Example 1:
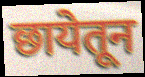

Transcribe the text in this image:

छायेतून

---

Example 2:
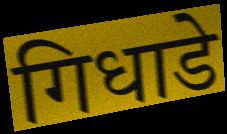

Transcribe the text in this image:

गिधाडे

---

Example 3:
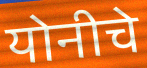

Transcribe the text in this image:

योनीचे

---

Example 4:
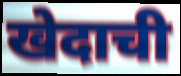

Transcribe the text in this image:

खेदाची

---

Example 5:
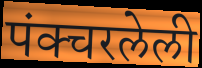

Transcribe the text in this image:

पंक्चरलेली